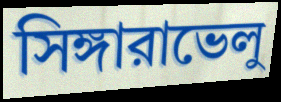
সিঙ্গারাভেলু